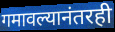
गमावल्यानंतरही